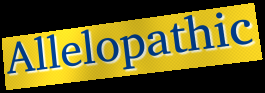
Allelopathic